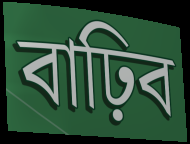
বাঢ়িব